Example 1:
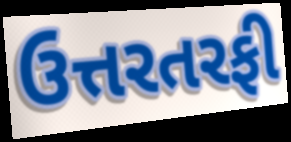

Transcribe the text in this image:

ઉત્તરતરફી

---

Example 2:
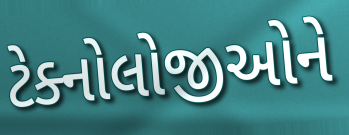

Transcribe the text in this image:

ટેક્નોલોજીઓને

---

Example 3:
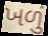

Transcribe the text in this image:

ખળું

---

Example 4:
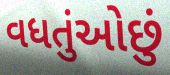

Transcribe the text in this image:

વધતુંઓછું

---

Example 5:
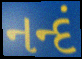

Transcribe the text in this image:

નન્દં